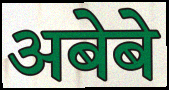
अबेबे